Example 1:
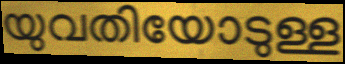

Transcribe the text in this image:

യുവതിയോടുള്ള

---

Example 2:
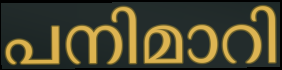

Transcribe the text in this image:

പനിമാറി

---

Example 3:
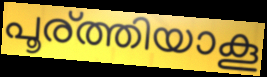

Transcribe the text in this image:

പൂര്ത്തിയാകൂ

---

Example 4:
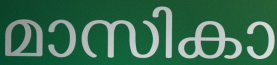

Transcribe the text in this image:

മാസികാ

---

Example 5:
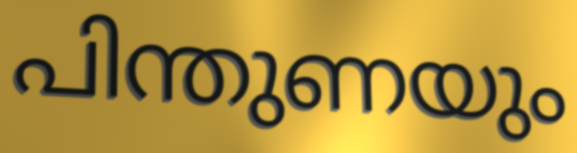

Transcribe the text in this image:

പിന്തുണയും